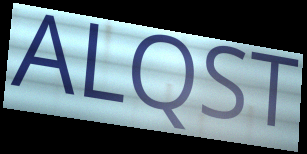
ALQST